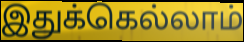
இதுக்கெல்லாம்